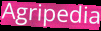
Agripedia